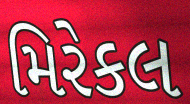
મિરેકલ